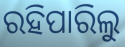
ରହିପାରିଲୁ